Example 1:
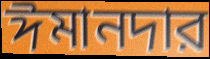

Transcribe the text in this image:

ঈমানদার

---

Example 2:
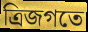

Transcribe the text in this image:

ত্রিজগতে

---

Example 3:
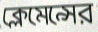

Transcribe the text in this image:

ক্লেমেন্সের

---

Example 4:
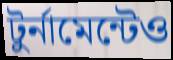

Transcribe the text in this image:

টুর্নামেন্টেও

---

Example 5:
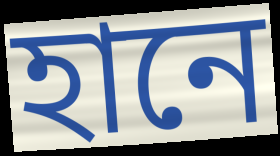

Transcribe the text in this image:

হানে